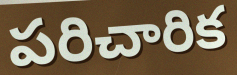
పరిచారిక